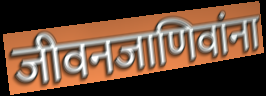
जीवनजाणिवांना